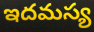
ఇదమస్య